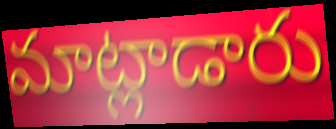
మాట్లాడారు